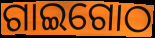
ଗାଇଗୋଠ